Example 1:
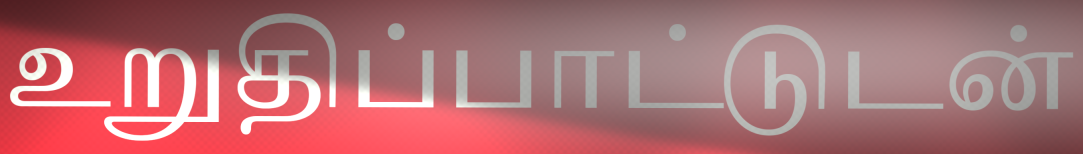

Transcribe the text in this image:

உறுதிப்பாட்டுடன்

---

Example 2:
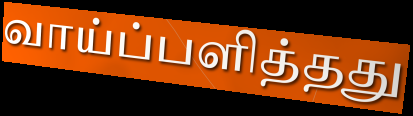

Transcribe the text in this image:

வாய்ப்பளித்தது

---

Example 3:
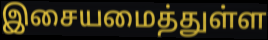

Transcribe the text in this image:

இசையமைத்துள்ள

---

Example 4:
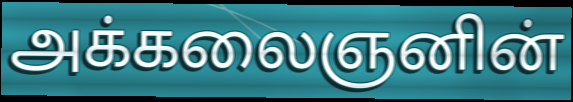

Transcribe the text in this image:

அக்கலைஞனின்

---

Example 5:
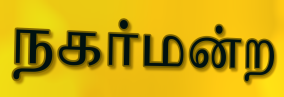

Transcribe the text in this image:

நகர்மன்ற